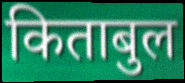
किताबुल